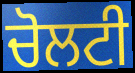
ਚੋਲਟੀ